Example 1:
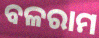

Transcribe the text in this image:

ବଳରାମ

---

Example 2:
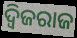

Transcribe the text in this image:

ଦ୍ୱିଜରାଜ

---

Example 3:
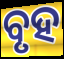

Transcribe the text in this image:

ବୃହ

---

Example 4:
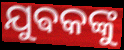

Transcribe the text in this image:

ଯୁଵକଙ୍କୁ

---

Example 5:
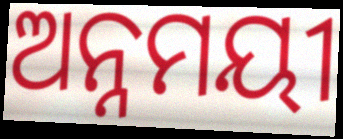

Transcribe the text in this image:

ଅନ୍ନମୟୀ